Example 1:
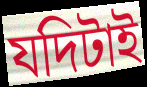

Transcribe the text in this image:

যদিটাই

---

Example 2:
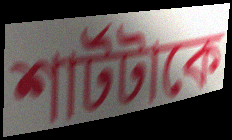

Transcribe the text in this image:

শার্টটাকে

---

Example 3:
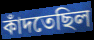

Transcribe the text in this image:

কাঁদতেছিল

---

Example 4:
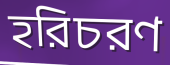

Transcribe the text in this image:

হরিচরণ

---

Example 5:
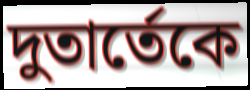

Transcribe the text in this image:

দুতার্তেকে